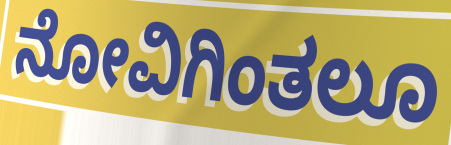
ನೋವಿಗಿಂತಲೂ